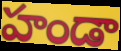
హండా